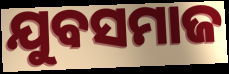
ଯୁବସମାଜ